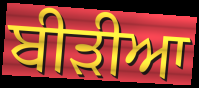
ਬੀੜੀਆ